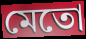
মেতো